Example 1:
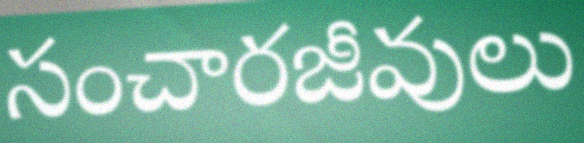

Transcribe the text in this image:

సంచారజీవులు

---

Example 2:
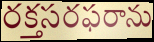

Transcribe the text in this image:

రక్తసరఫరాను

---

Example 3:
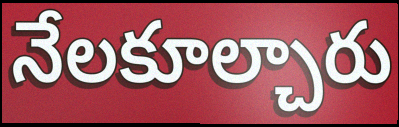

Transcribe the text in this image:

నేలకూల్చారు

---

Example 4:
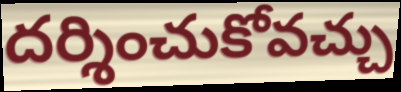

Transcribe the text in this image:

దర్శించుకోవచ్చు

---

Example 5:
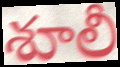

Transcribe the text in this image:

శూలీ